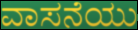
ವಾಸನೆಯು